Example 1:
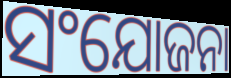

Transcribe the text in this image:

ସଂଯୋଜନା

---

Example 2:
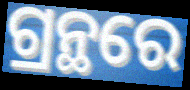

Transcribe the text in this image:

ଗ୍ରନ୍ଥରେ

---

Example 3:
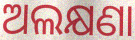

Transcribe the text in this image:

ଅଲକ୍ଷଣା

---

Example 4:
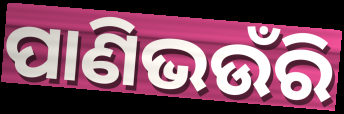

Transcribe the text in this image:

ପାଣିଭଉଁରି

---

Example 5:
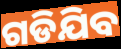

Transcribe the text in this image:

ଗଡିଯିବ